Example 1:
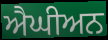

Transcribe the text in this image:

ਐਘੀਅਨ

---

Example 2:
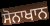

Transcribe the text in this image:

ਸੋਨਾਖਾਨ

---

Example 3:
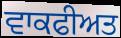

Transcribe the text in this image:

ਵਾਕਫੀਅਤ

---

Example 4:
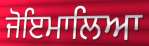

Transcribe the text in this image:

ਜੋਇਮਾਲਿਆ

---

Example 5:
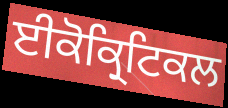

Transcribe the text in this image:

ਈਕੋਕ੍ਰਿਟਿਕਲ